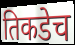
तिकडेच